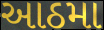
આઠમા